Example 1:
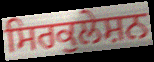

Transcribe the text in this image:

ਸਿਰਕੁਲੇਸ਼ਨ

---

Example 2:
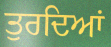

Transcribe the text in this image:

ਤੁਰਦਿਆਂ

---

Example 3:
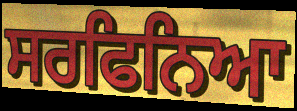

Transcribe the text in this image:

ਸਰਫਿਨਿਆ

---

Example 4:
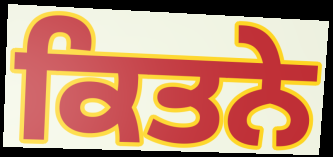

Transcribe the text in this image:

ਕਿਤਨੇ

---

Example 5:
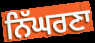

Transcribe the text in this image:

ਨਿੱਘਰਣਾ